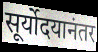
सूर्योदयानंतर